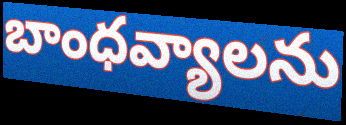
బాంధవ్యాలను